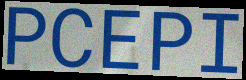
PCEPI